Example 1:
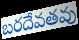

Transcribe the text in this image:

బరదేవతవు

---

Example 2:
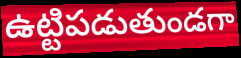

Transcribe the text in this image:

ఉట్టిపడుతుండగా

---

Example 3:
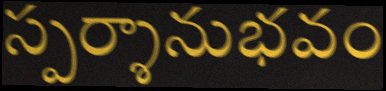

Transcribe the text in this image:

స్పర్శానుభవం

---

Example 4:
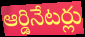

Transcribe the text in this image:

ఆర్డినేటర్లు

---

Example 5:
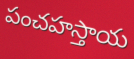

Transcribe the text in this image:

పంచహస్తాయ